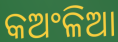
କଅଂଳିଆ